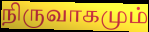
நிருவாகமும்